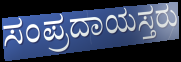
ಸಂಪ್ರದಾಯಸ್ತರು